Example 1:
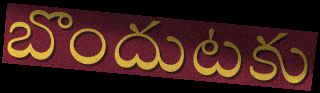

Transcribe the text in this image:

బొందుటకు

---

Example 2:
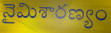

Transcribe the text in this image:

నైమిశారణ్యం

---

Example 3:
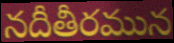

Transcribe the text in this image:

నదీతీరమున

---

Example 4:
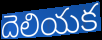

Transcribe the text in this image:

దెలియక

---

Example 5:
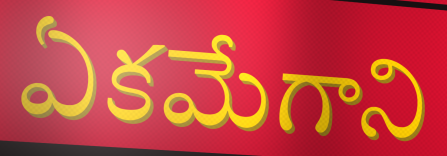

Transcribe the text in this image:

ఏకమేగాని